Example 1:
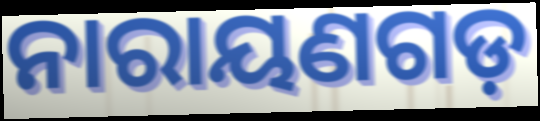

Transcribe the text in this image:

ନାରାୟଣଗଡ଼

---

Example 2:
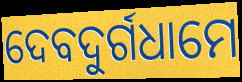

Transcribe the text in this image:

ଦେବଦୁର୍ଗଧାମେ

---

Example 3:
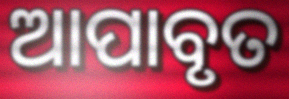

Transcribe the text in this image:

ଆପାବୃତ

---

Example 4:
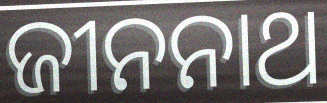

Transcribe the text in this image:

ଜୀନନାଥ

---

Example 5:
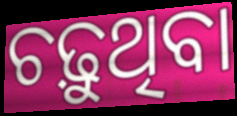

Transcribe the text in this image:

ଚଢ଼ୁଥିବା